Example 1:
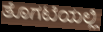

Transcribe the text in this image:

ತೊಗಟೆಯಲ್ಲಿ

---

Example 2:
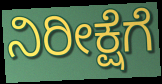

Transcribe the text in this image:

ನಿರೀಕ್ಷೆಗೆ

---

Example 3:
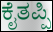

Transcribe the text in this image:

ಕೈತಪ್ಪಿ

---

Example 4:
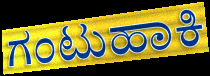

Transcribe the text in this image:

ಗಂಟುಹಾಕಿ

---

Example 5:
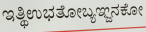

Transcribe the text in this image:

ಇತ್ಥಿಉಭತೋಬ್ಯಞ್ಜನಕೋ